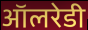
ऑलरेडी